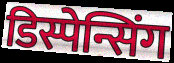
डिस्पेन्सिंग